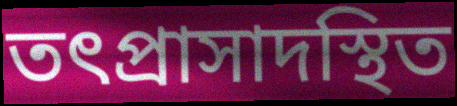
তৎপ্রাসাদস্থিত